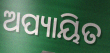
ଅପ୍ୟାୟିତ